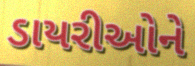
ડાયરીઓને